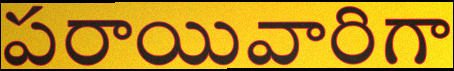
పరాయివారిగా